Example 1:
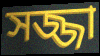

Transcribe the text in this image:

সজ্জা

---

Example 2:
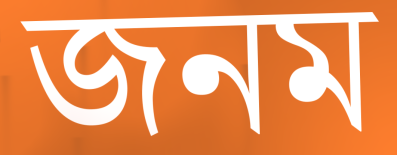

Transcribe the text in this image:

জনম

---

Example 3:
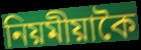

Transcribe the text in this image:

নিয়মীয়াকৈ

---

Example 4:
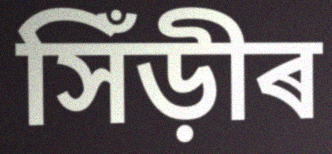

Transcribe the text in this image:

সিঁড়ীৰ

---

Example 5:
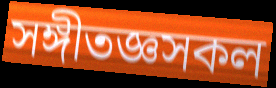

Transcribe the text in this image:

সঙ্গীতজ্ঞসকল